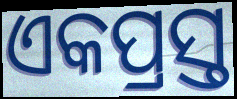
ଏକପ୍ରସ୍ତ